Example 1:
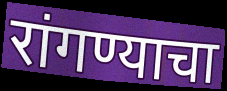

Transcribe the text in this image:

रांगण्याचा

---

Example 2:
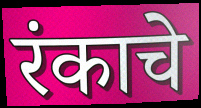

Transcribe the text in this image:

रंकाचे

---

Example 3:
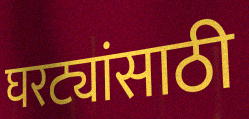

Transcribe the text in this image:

घरट्यांसाठी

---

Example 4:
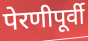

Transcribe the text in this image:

पेरणीपूर्वी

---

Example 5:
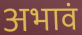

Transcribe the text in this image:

अभावं